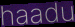
haadu